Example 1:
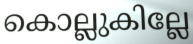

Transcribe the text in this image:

കൊല്ലുകില്ലേ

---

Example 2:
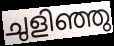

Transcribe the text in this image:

ചുളിഞ്ഞു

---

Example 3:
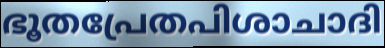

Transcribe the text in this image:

ഭൂതപ്രേതപിശാചാദി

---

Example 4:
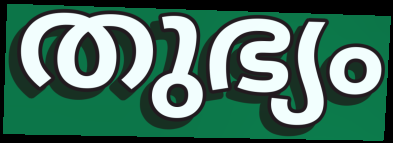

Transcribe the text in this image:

തുഭ്യം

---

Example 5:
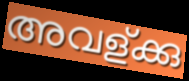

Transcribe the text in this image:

അവള്ക്കു